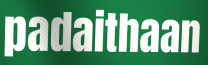
padaithaan